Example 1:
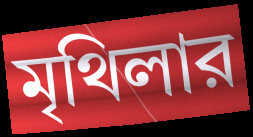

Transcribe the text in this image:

মৃথিলার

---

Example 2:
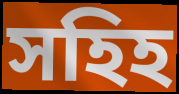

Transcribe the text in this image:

সহিহ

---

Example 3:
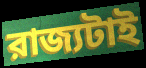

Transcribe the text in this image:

রাজ্যটাই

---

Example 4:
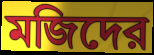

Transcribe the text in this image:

মজিদের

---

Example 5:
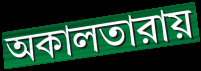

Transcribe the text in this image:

অকালতারায়